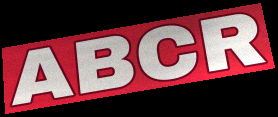
ABCR